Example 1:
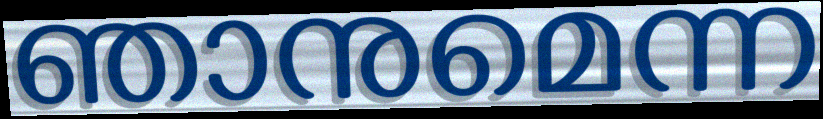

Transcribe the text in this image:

ഞാനുമെന്ന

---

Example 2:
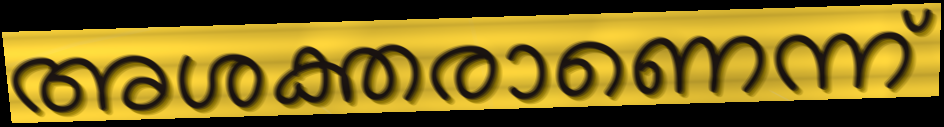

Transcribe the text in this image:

അശക്തരാണെന്ന്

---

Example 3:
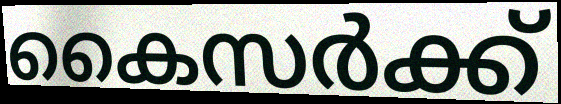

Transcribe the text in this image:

കൈസർക്ക്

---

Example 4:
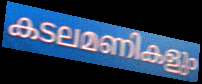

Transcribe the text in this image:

കടലമണികളും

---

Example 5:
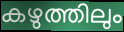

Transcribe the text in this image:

കഴുത്തിലും